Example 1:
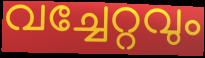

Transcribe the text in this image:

വച്ചേറ്റവും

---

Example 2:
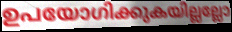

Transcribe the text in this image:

ഉപയോഗിക്കുകയില്ലല്ലോ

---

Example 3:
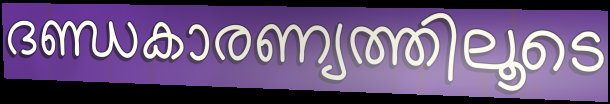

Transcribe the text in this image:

ദണ്ഡകാരണ്യത്തിലൂടെ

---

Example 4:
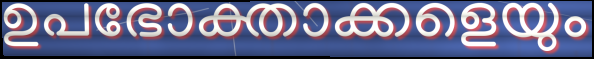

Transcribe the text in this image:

ഉപഭോക്താക്കളെയും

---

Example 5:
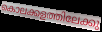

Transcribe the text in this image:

കൊലക്കളത്തിലേക്കു